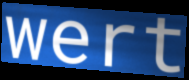
wert